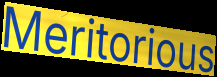
Meritorious